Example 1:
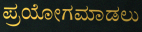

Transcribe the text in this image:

ಪ್ರಯೋಗಮಾಡಲು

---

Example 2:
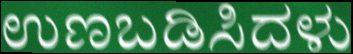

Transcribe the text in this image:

ಉಣಬಡಿಸಿದಳು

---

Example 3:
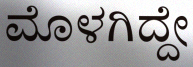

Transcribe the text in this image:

ಮೊಳಗಿದ್ದೇ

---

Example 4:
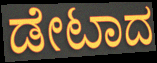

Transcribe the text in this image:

ಡೇಟಾದ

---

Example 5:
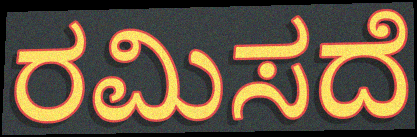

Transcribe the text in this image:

ರಮಿಸದೆ